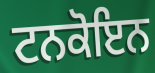
ਟਨਕੋਇਨ